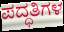
ಪದ್ಧತಿಗಳ